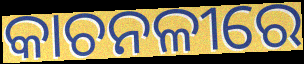
କାଚନଳୀରେ